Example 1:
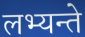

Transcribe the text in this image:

लभ्यन्ते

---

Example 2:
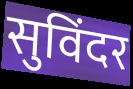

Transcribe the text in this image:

सुविंदर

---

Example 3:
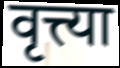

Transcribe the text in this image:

वृत्त्या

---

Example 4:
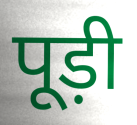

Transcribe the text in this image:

पूड़ी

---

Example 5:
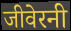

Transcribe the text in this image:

जीवेरनी